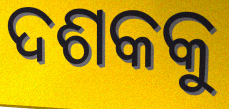
ଦଶକକୁ